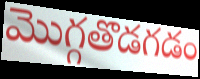
మొగ్గతొడగడం